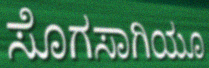
ಸೊಗಸಾಗಿಯೂ